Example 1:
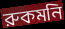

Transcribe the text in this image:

রুকমনি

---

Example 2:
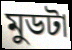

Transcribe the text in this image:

মুডটা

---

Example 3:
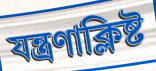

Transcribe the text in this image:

যন্ত্রণাক্লিষ্ট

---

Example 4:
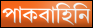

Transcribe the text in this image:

পাকবাহিনি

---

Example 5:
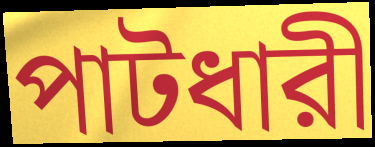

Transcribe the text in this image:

পাটধারী